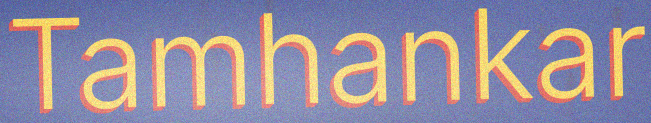
Tamhankar